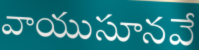
వాయుసూనవే